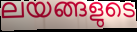
ലയങ്ങളുടെ